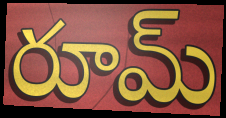
రూమ్